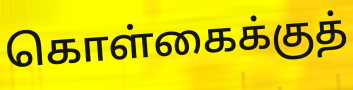
கொள்கைக்குத்